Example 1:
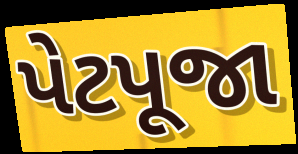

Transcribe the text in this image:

પેટપૂજા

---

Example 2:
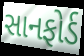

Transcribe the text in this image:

સાનફોર્ડ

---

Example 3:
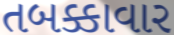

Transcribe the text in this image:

તબક્કાવાર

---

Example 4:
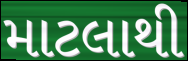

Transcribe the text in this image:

માટલાથી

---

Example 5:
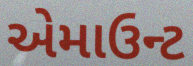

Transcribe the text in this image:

એમાઉન્ટ